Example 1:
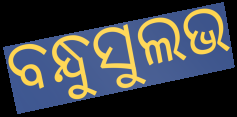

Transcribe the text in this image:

ବନ୍ଧୁସୁଲଭ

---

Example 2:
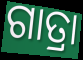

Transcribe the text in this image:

ଗାତ୍ରା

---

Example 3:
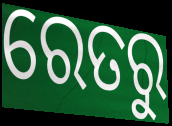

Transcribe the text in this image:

ରେତରୁ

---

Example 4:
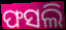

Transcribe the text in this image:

ଫସଲି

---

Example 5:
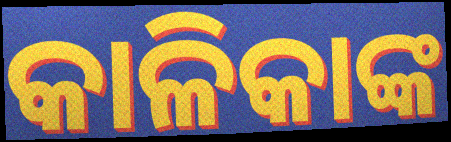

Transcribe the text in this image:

କାଳିକାଙ୍କ